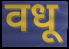
वधू